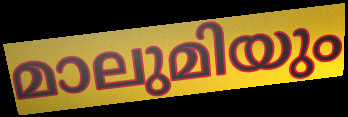
മാലുമിയും